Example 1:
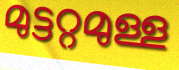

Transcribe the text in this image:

മുട്ടറ്റമുള്ള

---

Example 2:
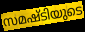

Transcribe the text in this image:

സമഷ്ടിയുടെ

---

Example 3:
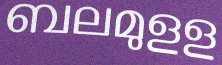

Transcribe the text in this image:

ബലമുളള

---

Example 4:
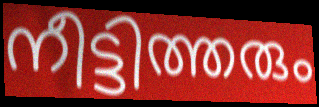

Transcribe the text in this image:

നീട്ടിത്തരും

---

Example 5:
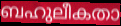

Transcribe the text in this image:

ബഹുലീകതാ